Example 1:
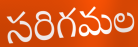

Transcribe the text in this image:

సరిగమల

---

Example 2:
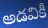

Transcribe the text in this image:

అడవికీ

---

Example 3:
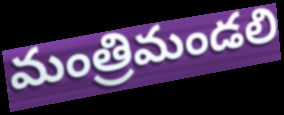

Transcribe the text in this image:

మంత్రిమండలి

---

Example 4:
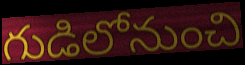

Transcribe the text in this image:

గుడిలోనుంచి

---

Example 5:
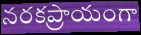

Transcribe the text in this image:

నరకప్రాయంగా